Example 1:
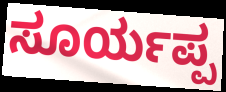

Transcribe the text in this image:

ಸೂರ್ಯಪ್ಪ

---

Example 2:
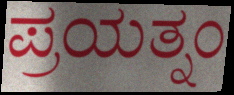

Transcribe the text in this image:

ಪ್ರಯತ್ನಂ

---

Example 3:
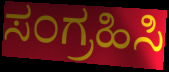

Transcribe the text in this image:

ಸಂಗ್ರಹಿಸಿ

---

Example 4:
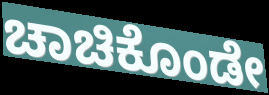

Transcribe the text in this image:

ಚಾಚಿಕೊಂಡೇ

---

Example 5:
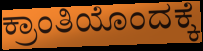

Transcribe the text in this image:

ಕ್ರಾಂತಿಯೊಂದಕ್ಕೆ